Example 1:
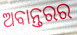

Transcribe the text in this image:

ଅବାନ୍ତରର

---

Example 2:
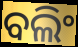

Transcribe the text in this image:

ବଲିଂ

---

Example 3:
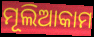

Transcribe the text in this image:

ମୂଲିଆକାମ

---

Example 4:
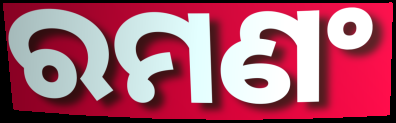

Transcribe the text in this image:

ରମଣଂ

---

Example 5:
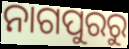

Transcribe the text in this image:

ନାଗପୁରରୁ